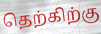
தெற்கிற்கு